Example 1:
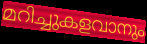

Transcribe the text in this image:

മറിച്ചുകളവാനും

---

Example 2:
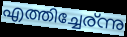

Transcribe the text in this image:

എത്തിച്ചേര്ന്നു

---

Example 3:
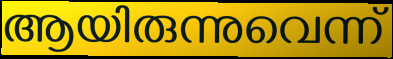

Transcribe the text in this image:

ആയിരുന്നുവെന്ന്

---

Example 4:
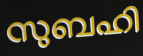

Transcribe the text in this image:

സുബഹി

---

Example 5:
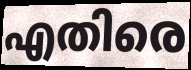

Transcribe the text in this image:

എതിരെ